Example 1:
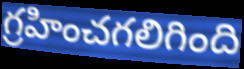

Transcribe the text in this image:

గ్రహించగలిగింది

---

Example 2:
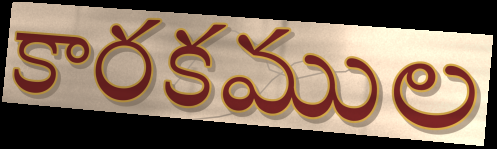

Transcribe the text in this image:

కారకముల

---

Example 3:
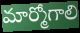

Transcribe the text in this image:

మార్మోగాలి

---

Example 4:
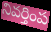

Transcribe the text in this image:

నివర్తింప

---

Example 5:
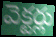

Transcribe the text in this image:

వెక్టర్లు